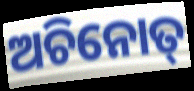
ଅଚିନୋତ୍